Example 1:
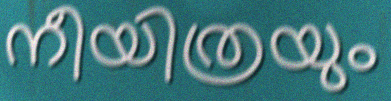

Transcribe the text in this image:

നീയിത്രയും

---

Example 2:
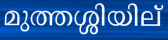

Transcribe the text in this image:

മുത്തശ്ശിയില്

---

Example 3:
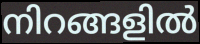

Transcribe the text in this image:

നിറങ്ങളിൽ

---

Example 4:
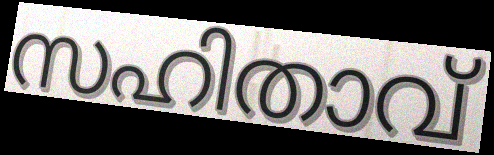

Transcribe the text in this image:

സഹിതാവ്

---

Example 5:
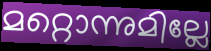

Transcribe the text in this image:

മറ്റൊന്നുമില്ലേ